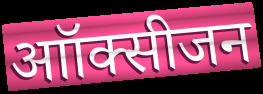
आॉक्सीजन